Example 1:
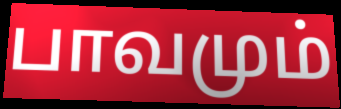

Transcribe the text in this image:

பாவமும்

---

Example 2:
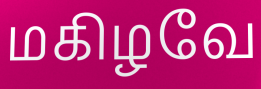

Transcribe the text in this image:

மகிழவே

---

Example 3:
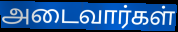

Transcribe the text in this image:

அடைவார்கள்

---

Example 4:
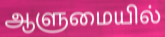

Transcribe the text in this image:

ஆளுமையில்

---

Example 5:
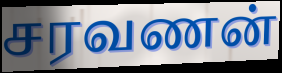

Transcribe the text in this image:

சரவணன்